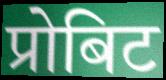
प्रोबिट